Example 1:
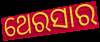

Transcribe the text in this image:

ଥେରସାର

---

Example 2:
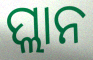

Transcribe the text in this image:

ପ୍ଲାନ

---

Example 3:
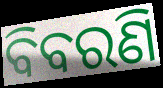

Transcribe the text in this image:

ବିବରଣି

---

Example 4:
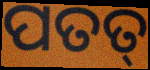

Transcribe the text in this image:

ପତତ୍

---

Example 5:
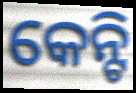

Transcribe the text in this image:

କେନ୍ଟି